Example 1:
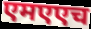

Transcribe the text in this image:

एमएएच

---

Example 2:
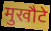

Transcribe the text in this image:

मुखौटे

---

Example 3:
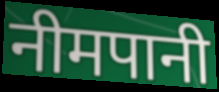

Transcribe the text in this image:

नीमपानी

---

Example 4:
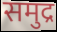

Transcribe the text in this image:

समुद्र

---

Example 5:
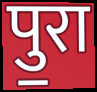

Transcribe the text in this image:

पु॒रा